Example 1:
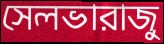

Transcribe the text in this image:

সেলভারাজু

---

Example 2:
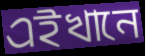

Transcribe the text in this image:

এইখানে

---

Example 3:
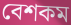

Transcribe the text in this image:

বেশকম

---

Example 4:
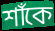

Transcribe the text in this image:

শাঁকে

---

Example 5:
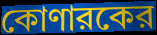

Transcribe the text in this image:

কোণারকের